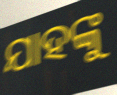
ଯାହଙ୍କୁ